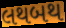
લથબથ